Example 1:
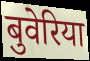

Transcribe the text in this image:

बुवेरिया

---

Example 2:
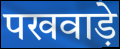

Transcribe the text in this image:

पखवाड़े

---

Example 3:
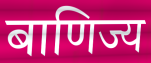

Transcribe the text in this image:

बाणिज्य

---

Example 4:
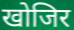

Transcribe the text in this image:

खोजिर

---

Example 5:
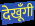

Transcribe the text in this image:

देखूँगी